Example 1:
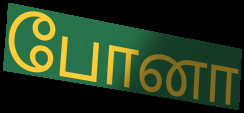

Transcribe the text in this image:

போனா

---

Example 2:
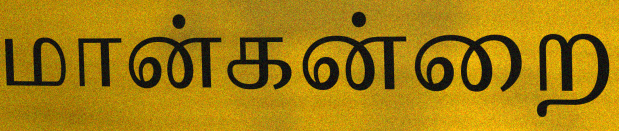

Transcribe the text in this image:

மான்கன்றை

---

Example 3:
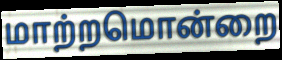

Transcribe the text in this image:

மாற்றமொன்றை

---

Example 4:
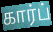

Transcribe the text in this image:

கார்ப்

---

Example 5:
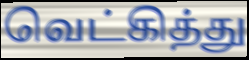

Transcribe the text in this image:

வெட்கித்து